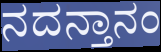
ನದನ್ತಾನಂ